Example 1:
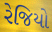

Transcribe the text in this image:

રેજિયો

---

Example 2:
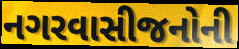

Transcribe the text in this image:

નગરવાસીજનોની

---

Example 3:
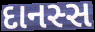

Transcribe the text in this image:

દાનસ્સ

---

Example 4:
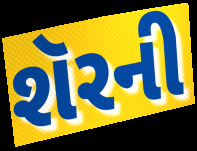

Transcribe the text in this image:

શૅરની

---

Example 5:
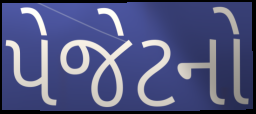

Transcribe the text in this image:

પેજેટનો